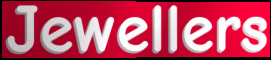
Jewellers